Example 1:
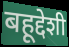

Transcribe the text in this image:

बहूद्देशी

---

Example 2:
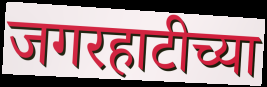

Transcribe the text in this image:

जगरहाटीच्या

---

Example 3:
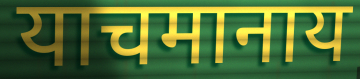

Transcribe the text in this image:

याचमानाय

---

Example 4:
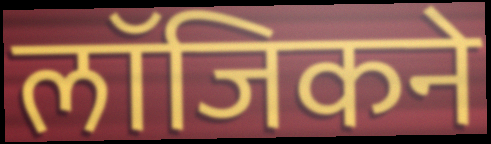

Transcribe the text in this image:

लॉजिकने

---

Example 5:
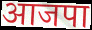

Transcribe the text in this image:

आजपा